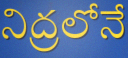
నిద్రలోనే